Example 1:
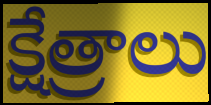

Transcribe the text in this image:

క్షేత్రాలు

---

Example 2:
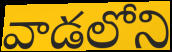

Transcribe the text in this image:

వాడలోని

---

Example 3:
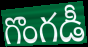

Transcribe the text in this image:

గొంగడీ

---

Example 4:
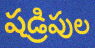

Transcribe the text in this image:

షడ్రిపుల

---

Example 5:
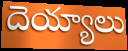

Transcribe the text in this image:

దెయ్యాలు